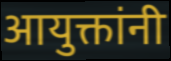
आयुक्तांनी